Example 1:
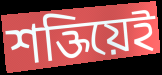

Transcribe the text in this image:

শক্তিয়েই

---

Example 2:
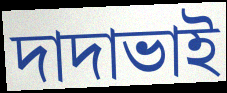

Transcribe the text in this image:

দাদাভাই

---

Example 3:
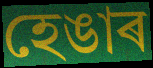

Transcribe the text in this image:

হেঙাৰ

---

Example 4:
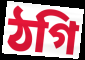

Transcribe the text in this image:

ঠগি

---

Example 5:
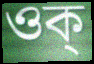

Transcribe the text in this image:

ওক্